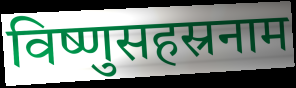
विष्णुसहस्रनाम